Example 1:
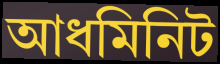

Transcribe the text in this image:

আধমিনিট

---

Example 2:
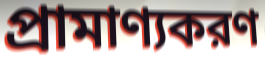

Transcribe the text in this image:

প্রামাণ্যকরণ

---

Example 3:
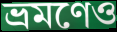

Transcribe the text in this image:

ভ্রমণেও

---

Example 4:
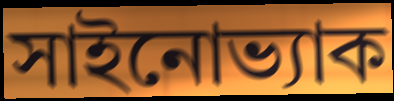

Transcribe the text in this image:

সাইনোভ্যাক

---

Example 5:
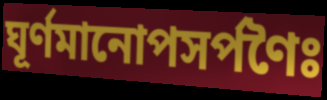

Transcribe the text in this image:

ঘূর্ণমানোপসর্পণৈঃ